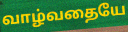
வாழ்வதையே